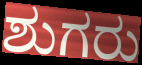
ಶುಗರು